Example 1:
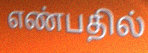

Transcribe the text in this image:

எண்பதில்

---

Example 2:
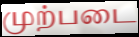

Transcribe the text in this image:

முற்படை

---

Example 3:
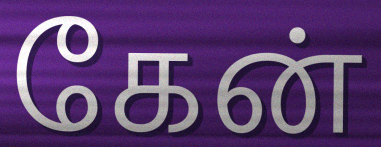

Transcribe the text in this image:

கேன்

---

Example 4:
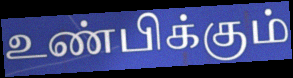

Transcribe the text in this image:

உண்பிக்கும்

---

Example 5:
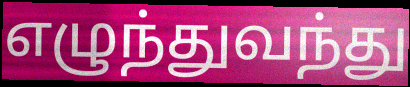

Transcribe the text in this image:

எழுந்துவந்து